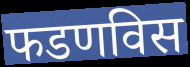
फडणविस